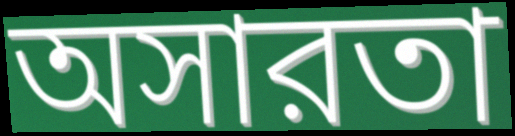
অসারতা